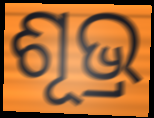
ଶୂଭ୍ର